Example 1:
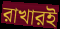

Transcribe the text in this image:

রাখারই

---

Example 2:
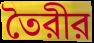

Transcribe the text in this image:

তৈরীর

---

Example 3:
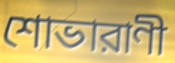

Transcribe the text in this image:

শোভারাণী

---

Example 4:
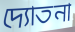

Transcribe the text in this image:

দ্যোতনা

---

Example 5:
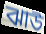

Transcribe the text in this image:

ঝাউ